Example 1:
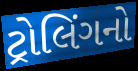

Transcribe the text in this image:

ટ્રોલિંગનો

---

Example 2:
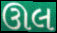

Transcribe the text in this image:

ઊલ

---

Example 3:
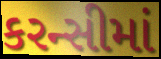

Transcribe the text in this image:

કરન્સીમાં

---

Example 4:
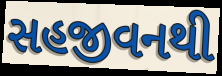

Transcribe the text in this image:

સહજીવનથી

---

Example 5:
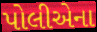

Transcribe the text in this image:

પોલીએના